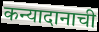
कन्यादानाची